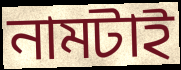
নামটাই